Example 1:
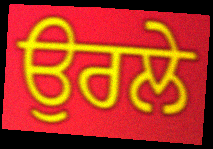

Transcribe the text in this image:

ਉਰਲੇ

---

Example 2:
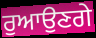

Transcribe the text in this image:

ਰੁਆਉਣਗੇ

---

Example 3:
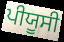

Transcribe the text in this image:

ਪੀਯੂਸੀ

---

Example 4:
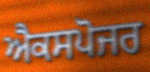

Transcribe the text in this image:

ਐਕਸਪੋਜਰ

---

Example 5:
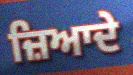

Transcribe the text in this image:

ਜ਼ਿਆਦੇ